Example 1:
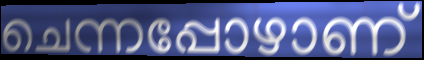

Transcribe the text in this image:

ചെന്നപ്പോഴാണ്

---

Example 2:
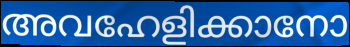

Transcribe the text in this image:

അവഹേളിക്കാനോ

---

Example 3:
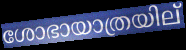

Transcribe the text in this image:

ശോഭായാത്രയില്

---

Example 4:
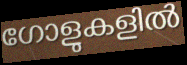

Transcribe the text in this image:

ഗോളുകളിൽ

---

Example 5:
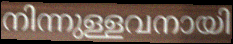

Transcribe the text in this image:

നിന്നുള്ളവനായി